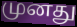
முனது